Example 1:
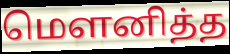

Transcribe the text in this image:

மௌனித்த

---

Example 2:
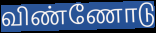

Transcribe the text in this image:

விண்ணோடு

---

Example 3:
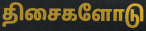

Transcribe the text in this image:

திசைகளோடு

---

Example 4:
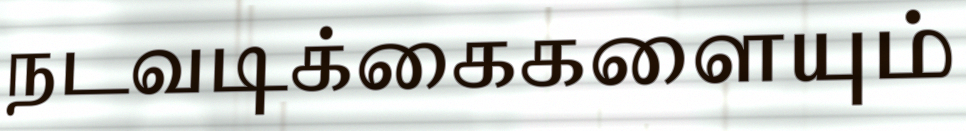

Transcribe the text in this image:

நடவடிக்கைகளையும்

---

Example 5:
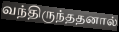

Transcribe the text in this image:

வந்திருந்ததனால்